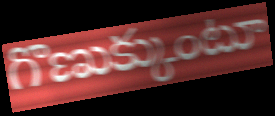
గొణుక్కుంటూ